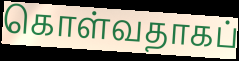
கொள்வதாகப்